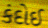
કંદોઈ